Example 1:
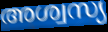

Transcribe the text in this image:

അശ്വസ്യ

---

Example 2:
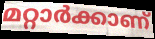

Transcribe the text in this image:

മറ്റാർക്കാണ്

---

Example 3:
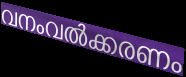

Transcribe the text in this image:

വനംവൽക്കരണം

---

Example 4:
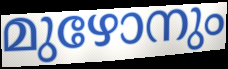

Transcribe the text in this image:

മുഴോനും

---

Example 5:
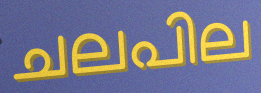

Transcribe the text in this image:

ചലപില